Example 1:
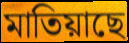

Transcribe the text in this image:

মাতিয়াছে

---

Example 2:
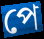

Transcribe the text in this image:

পে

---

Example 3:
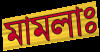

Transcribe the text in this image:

মামলাঃ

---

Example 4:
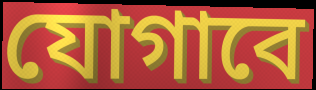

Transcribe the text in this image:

যোগাবে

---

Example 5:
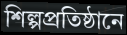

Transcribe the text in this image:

শিল্পপ্রতিষ্ঠানে